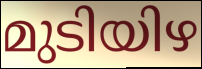
മുടിയിഴ